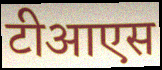
टीआएस